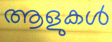
ആളുകൾ